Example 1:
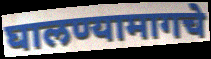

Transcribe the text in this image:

घालण्यामागचे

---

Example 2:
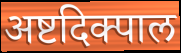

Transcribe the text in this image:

अष्टदिक्पाल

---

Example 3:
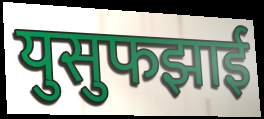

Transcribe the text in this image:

युसुफझाई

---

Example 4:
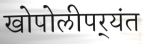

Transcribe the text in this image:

खोपोलीपर्यंत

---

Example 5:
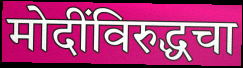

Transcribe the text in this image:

मोदींविरुद्धचा